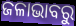
ଜଳାଭାବରୁ